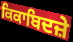
ਕਿਕਾਬਿਦਜ਼ੇ